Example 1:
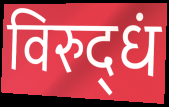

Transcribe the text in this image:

विरुद्धं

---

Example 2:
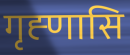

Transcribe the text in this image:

गृह्णासि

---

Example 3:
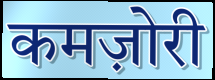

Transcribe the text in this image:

कमज़ोरी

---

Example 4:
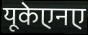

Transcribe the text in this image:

यूकेएनए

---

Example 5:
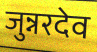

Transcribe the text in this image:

जुन्नरदेव